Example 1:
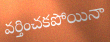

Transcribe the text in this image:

వర్తించకపోయినా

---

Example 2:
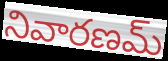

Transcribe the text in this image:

నివారణమ్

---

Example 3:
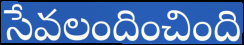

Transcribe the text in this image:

సేవలందించింది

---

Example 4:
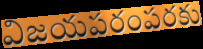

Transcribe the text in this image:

విజయపరంపరకు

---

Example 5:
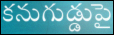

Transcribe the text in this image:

కనుగుడ్డుపై